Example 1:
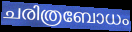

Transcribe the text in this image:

ചരിത്രബോധം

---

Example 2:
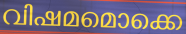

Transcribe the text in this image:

വിഷമമൊക്കെ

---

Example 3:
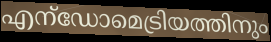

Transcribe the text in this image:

എന്ഡോമെട്രിയത്തിനും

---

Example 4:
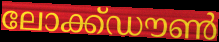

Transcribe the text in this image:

ലോക്ക്ഡൗൺ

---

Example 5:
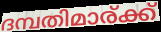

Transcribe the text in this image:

ദമ്പതിമാര്ക്ക്